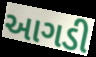
આગડી